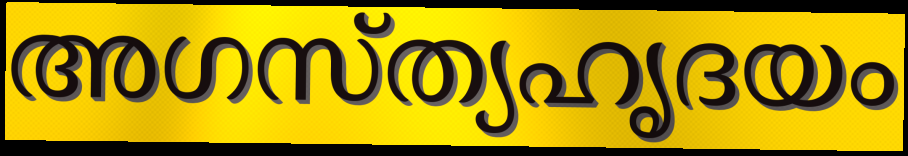
അഗസ്ത്യഹൃദയം